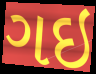
ગઇ